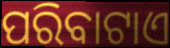
ପରିବାଟାଏ